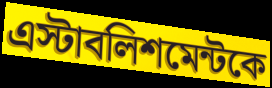
এস্টাবলিশমেন্টকে